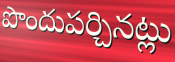
పొందుపర్చినట్లు